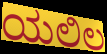
ಯಲಿಲ